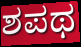
ಶಪಥ